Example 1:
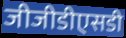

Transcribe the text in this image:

जीजीडीएसडी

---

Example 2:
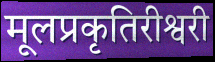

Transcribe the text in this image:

मूलप्रकृतिरीश्वरी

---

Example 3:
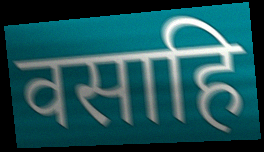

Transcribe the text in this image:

वसाहि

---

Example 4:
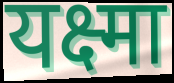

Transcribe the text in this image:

यक्ष्मा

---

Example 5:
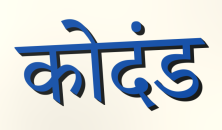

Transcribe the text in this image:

कोदंड